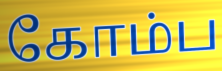
கோம்ப